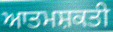
ਆਤਮਸ਼ਕਤੀ